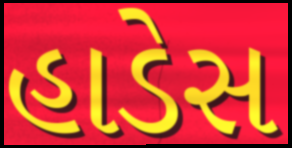
હાડેસ